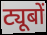
ट्यूबों